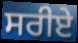
ਸਰੀਏ